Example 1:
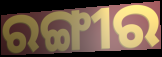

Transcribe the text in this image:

ରଙ୍ଗୀର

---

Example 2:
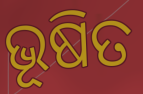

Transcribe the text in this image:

ଭୂଷିତ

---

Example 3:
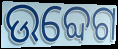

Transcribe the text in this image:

ଉବ୍ଦେଗ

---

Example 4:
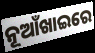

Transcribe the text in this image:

ନୂଆଁଖାଇରେ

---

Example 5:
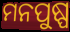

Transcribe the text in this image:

ମନପୁଷ୍ପ